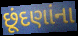
છૂંદણાંના